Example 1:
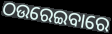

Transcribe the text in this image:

ଠଉରେଇବାରେ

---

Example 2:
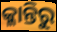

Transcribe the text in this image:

କ୍ଳାନ୍ତିରୁ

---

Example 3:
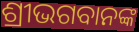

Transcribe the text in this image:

ଶ୍ରୀଭଗବାନଙ୍କ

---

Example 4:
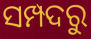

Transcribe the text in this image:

ସମ୍ପଦରୁ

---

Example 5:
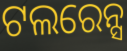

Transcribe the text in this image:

ଟଲରେନ୍ସ